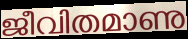
ജീവിതമാണു